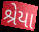
શ્રેયા